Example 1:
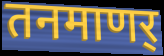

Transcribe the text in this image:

तनमाणर्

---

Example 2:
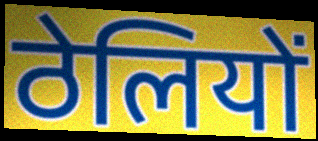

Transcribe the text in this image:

ठेलियों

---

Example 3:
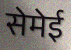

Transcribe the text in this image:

सेमेई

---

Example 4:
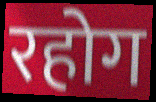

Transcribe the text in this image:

रहोग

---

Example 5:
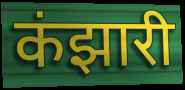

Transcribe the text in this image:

कंझारी